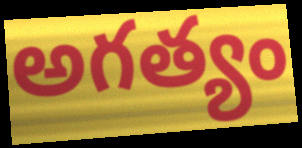
అగత్యం